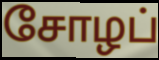
சோழப்